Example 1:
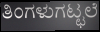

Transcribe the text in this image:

ತಿಂಗಳುಗಟ್ಟಲೆ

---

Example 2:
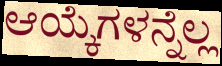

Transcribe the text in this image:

ಆಯ್ಕೆಗಳನ್ನೆಲ್ಲ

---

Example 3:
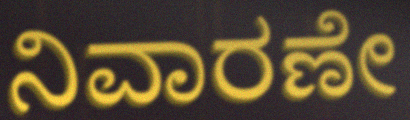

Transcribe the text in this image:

ನಿವಾರಣೇ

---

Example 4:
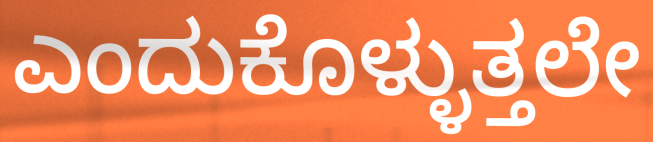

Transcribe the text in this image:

ಎಂದುಕೊಳ್ಳುತ್ತಲೇ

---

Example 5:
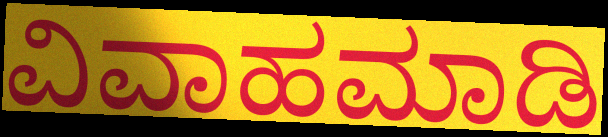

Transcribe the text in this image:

ವಿವಾಹಮಾಡಿ